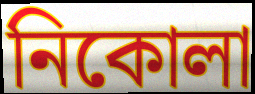
নিকোলা